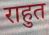
राहुत